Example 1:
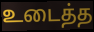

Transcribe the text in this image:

உடைத்த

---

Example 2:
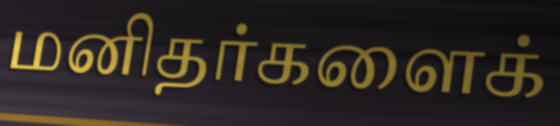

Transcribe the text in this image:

மனிதர்களைக்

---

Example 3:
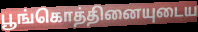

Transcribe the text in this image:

பூங்கொத்தினையுடைய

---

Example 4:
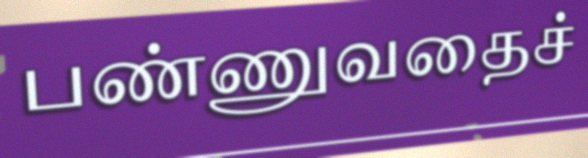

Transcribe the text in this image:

பண்ணுவதைச்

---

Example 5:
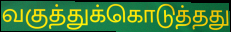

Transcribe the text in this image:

வகுத்துக்கொடுத்தது